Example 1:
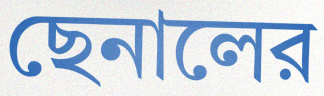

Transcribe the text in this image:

ছেনালের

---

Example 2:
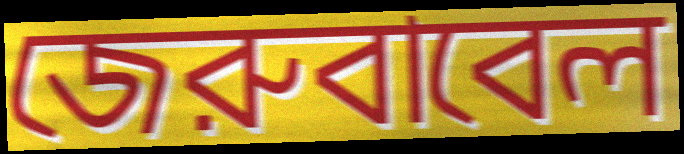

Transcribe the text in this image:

জেরুবাবেল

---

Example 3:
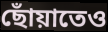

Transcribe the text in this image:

ছোঁয়াতেও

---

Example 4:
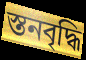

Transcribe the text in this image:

স্তনবৃদ্ধি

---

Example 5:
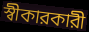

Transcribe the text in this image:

স্বীকারকারী